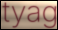
tyag